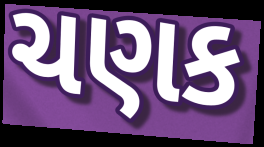
ચણક